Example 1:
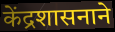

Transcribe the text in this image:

केंद्रशासनाने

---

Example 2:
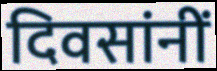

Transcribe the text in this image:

दिवसांनीं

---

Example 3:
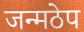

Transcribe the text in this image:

जन्मठेप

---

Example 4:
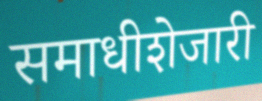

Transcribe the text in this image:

समाधीशेजारी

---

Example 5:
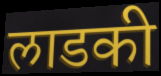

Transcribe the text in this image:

लाडकी